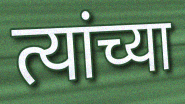
त्यांच्या